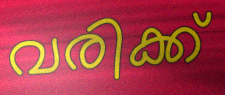
വരിക്ക്